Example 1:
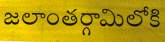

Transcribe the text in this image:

జలాంతర్గామిలోకి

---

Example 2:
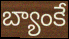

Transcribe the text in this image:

బ్యాంకే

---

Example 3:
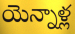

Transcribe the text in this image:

యెన్నాళ్ల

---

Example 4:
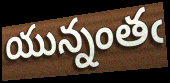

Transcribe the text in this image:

యున్నంతఁ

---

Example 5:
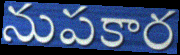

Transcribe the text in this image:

నుపకార